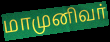
மாமுனிவர்